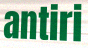
antiri